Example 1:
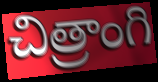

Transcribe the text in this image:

చిత్రాంగి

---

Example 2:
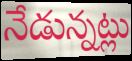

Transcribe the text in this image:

నేడున్నట్లు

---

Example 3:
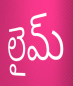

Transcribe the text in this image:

లైమ్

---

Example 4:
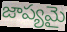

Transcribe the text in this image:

జాప్యమై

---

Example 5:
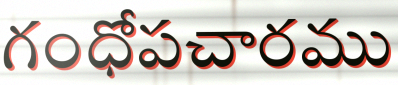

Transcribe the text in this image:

గంధోపచారము